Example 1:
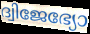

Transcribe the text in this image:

ദ്വിജേഭ്യോ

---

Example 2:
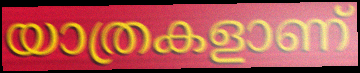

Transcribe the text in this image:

യാത്രകളാണ്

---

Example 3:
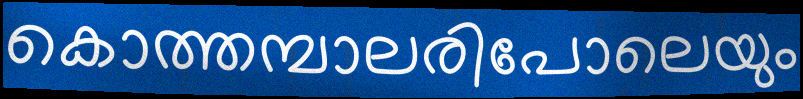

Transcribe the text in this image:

കൊത്തമ്പാലരിപോലെയും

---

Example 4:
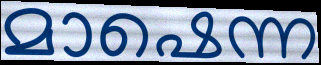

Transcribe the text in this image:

മാഷെന്ന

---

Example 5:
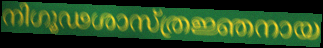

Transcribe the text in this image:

നിഗൂഢശാസ്ത്രജ്ഞനായ